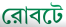
রোবটে